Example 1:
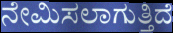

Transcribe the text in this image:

ನೇಮಿಸಲಾಗುತ್ತಿದೆ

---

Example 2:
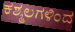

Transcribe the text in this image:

ಕಶ್ಮಲಗಳಿಂದ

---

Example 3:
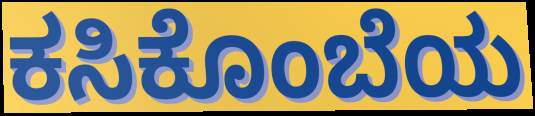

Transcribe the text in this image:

ಕಸಿಕೊಂಬೆಯ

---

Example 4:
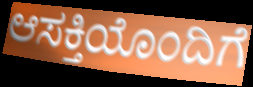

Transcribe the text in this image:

ಆಸಕ್ತಿಯೊಂದಿಗೆ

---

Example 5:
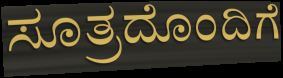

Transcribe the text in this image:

ಸೂತ್ರದೊಂದಿಗೆ